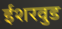
ईशरवुड